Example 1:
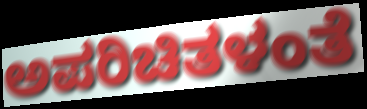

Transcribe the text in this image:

ಅಪರಿಚಿತಳಂತೆ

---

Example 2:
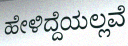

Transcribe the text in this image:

ಹೇಳಿದ್ದೆಯಲ್ಲವೆ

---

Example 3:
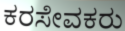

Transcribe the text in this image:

ಕರಸೇವಕರು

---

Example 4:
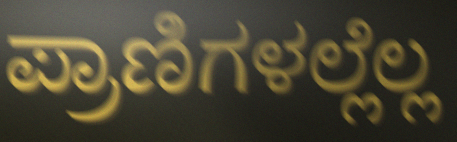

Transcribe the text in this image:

ಪ್ರಾಣಿಗಳಲ್ಲೆಲ್ಲ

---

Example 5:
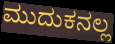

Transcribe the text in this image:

ಮುದುಕನಲ್ಲ